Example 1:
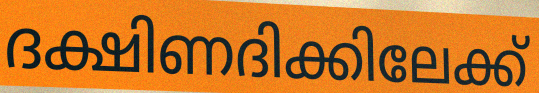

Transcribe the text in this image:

ദക്ഷിണദിക്കിലേക്ക്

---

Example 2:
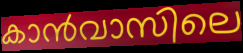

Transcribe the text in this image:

കാൻവാസിലെ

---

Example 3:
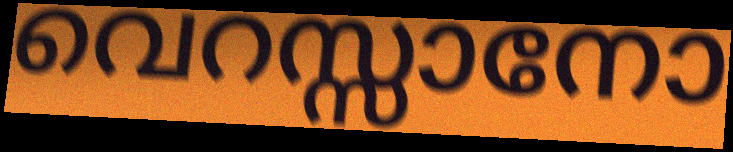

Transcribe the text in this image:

വെറസ്സാനോ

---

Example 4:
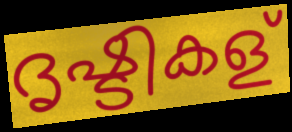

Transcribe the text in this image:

ദൃഷ്ടികള്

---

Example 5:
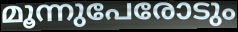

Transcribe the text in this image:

മൂന്നുപേരോടും